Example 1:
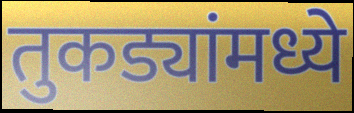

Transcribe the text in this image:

तुकड्यांमध्ये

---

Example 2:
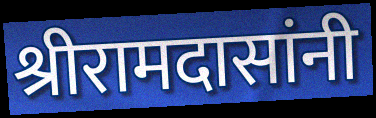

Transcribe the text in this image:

श्रीरामदासांनी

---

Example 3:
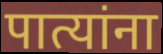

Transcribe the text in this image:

पात्यांना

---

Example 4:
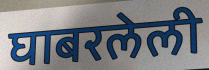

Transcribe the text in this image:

घाबरलेली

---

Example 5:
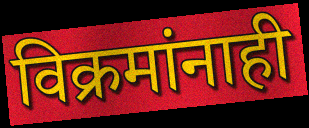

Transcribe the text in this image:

विक्रमांनाही